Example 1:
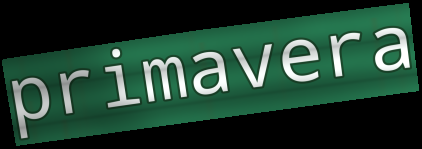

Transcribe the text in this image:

primavera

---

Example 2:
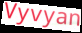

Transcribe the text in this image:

Vyvyan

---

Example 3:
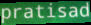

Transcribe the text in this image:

pratisad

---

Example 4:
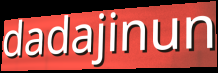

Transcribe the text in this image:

dadajinun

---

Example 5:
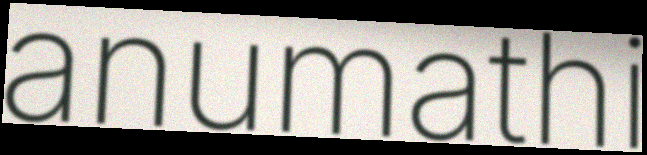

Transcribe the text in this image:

anumathi